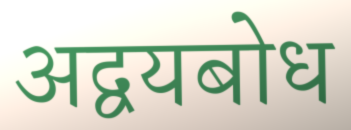
अद्वयबोध